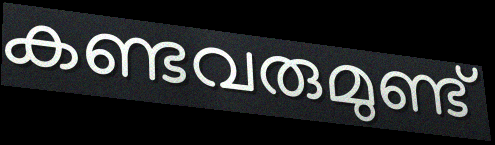
കണ്ടവരുമുണ്ട്